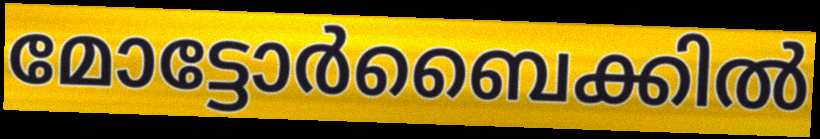
മോട്ടോർബൈക്കിൽ